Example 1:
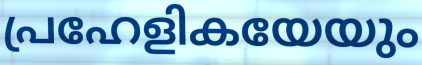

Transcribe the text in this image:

പ്രഹേളികയേയും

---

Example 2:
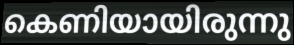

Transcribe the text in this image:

കെണിയായിരുന്നു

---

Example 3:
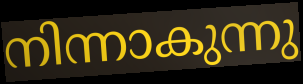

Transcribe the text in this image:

നിന്നാകുന്നു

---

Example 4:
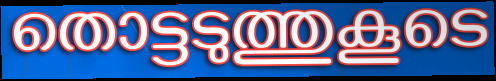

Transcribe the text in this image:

തൊട്ടടുത്തുകൂടെ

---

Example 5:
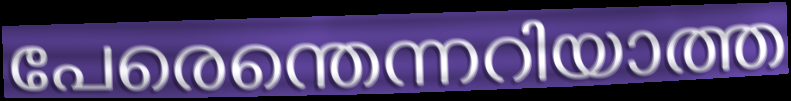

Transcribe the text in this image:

പേരെന്തെന്നറിയാത്ത